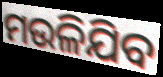
ମଉଳିଯିବ